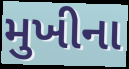
મુખીના